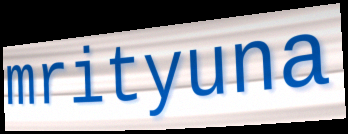
mrityuna